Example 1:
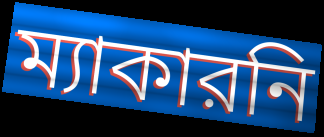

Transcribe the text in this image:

ম্যাকারনি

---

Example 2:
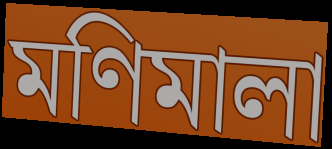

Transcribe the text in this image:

মণিমালা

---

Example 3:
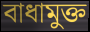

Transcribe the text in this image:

বাধামুক্ত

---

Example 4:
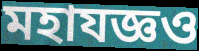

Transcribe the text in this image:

মহাযজ্ঞও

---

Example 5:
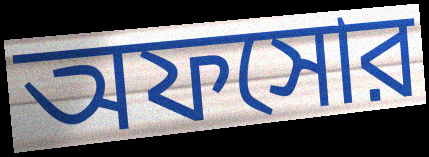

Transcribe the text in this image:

অফসোর